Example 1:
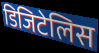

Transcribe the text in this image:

डिजिटेलिस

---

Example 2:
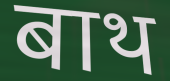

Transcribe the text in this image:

बाथ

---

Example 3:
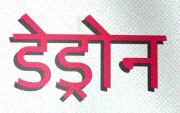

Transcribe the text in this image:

डेड्रोन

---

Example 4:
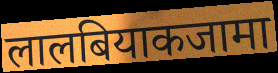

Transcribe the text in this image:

लालबियाकजामा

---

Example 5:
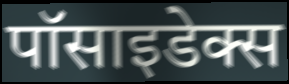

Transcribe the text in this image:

पॉसाइडेक्स